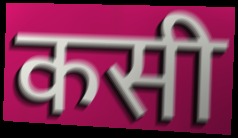
कसी